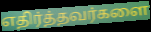
எதிர்த்தவர்களை